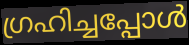
ഗ്രഹിച്ചപ്പോൾ